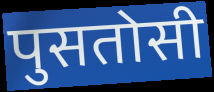
पुसतोसी